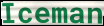
Iceman